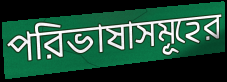
পরিভাষাসমূহের